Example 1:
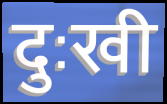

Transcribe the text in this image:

दुःखी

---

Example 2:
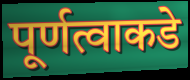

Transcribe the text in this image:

पूर्णत्वाकडे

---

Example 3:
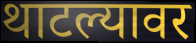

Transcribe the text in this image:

थाटल्यावर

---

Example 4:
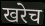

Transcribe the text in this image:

खरेच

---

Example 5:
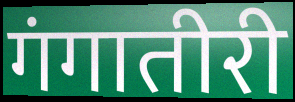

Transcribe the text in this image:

गंगातीरी